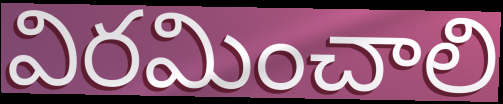
విరమించాలి